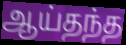
ஆய்தந்த